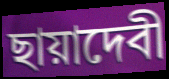
ছায়াদেবী